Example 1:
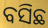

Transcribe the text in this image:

ବସିଛ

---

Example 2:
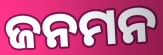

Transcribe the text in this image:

ଜନମନ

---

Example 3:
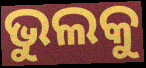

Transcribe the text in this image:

ଭୁଲକୁ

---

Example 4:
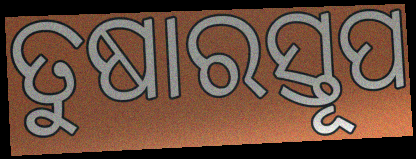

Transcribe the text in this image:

ତୁଷାରସ୍ତୂପ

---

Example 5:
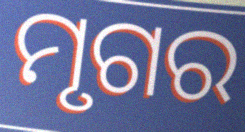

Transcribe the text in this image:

ମୃଗର